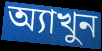
অ্যাখুন